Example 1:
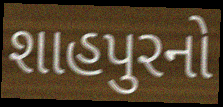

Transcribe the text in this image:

શાહપુરનો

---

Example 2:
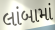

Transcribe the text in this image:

લાંબામાં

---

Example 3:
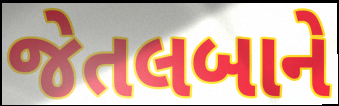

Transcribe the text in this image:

જેતલબાને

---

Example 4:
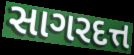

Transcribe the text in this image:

સાગરદત્ત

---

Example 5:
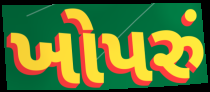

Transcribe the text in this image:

ખોપરું